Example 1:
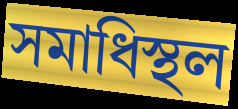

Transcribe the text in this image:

সমাধিস্থল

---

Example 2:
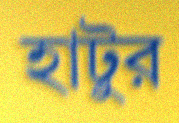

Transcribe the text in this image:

হাটুর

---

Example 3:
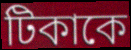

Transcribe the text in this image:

টিকাকে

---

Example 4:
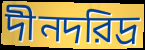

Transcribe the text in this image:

দীনদরিদ্র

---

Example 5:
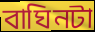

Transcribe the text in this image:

বাঘিনটা